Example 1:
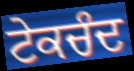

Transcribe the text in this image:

ਟੇਕਚੰਦ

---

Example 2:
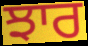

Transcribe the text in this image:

ਝਾਰ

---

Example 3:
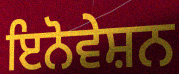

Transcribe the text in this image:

ਇਨੋਵੇਸ਼ਨ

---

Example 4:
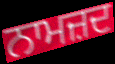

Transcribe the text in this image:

ਨਾਮਜ਼ਦ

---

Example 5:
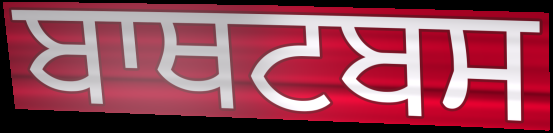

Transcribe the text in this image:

ਬਾਥਟਬਸ